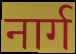
नार्ग